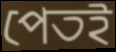
পেতই